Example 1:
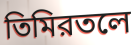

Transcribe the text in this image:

তিমিরতলে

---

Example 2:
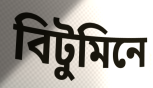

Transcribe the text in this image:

বিটুমিনে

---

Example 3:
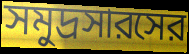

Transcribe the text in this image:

সমুদ্রসারসের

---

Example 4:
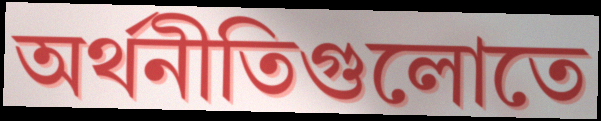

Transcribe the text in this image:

অর্থনীতিগুলোতে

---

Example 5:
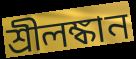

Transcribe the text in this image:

শ্রীলঙ্কান